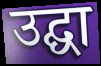
उद्घा